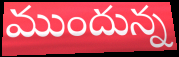
ముందున్న